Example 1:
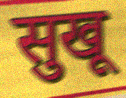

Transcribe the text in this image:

सुखू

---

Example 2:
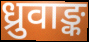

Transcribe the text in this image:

ध्रुवाङ्क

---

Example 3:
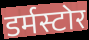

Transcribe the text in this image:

डर्मस्टोर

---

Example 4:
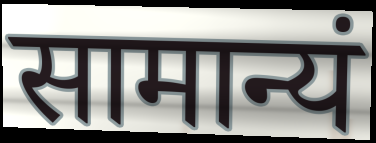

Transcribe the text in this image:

सामान्यं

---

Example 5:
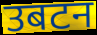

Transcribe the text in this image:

उबटन